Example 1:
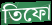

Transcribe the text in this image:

তিফো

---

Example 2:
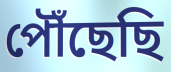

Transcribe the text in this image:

পৌঁছেছি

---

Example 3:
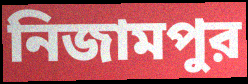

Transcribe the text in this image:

নিজামপুর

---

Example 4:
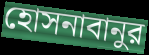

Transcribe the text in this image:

হোসনাবানুর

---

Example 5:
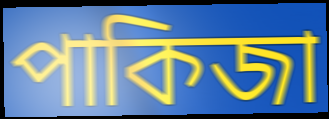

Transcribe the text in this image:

পাকিজা